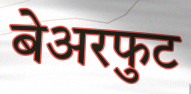
बेअरफुट